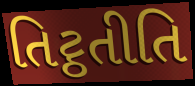
તિટ્ઠતીતિ